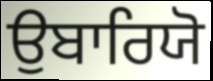
ਉਬਾਰਿਯੋ